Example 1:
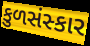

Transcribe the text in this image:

કુળસંસ્કાર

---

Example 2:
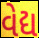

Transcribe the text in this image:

વેદ્ય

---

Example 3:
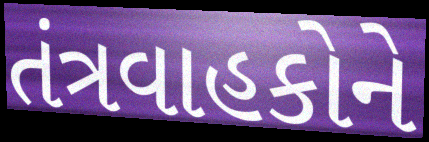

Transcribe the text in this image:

તંત્રવાહકોને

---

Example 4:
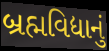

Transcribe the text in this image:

બ્રહ્મવિદ્યાનું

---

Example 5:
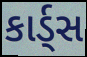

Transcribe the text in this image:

કાર્ડ્સ